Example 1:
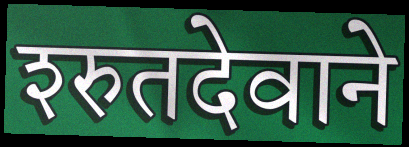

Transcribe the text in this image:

श्रुतदेवाने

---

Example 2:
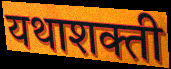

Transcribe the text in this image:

यथाशक्‍ती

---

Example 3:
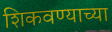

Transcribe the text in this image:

शिकवण्याच्या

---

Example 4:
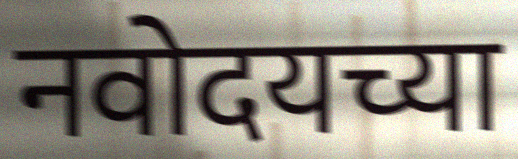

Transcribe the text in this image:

नवोदयच्या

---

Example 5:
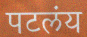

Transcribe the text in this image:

पटलंय